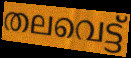
തലവെട്ട്